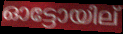
ഓട്ടോയില്